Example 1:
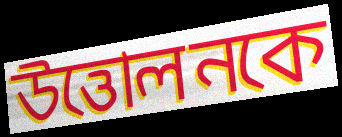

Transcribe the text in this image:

উত্তোলনকে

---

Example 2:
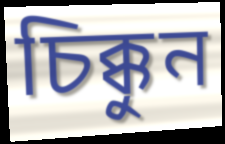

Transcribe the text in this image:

চিক্কুন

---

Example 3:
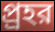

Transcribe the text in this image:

প্র্রহর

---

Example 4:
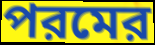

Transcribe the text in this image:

পরমের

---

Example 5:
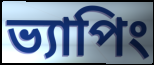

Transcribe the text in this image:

ভ্যাপিং